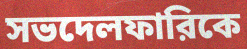
সভদেলফারিকে